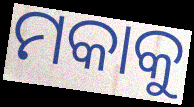
ମକାକୁ